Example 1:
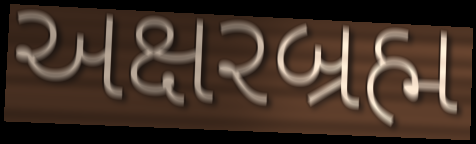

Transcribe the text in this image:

અક્ષરબ્રહ્મ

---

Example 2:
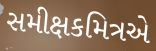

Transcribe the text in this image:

સમીક્ષકમિત્રએ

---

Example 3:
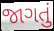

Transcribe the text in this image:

જાગતું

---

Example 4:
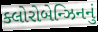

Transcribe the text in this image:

ક્લોરોબેન્ઝિનનું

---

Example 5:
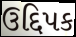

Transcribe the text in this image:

ઉદ્દિપક